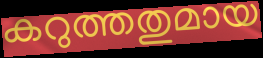
കറുത്തതുമായ